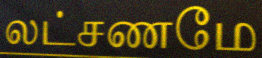
லட்சணமே